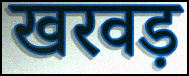
खरवड़